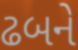
ઢબને